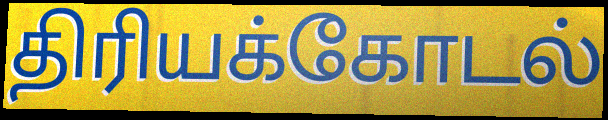
திரியக்கோடல்